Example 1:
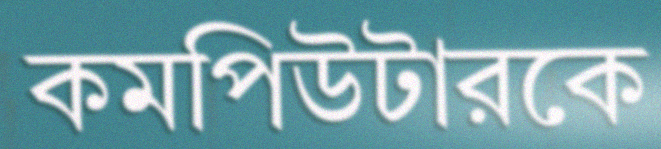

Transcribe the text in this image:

কমপিউটারকে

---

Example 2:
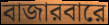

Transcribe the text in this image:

বাজারবারে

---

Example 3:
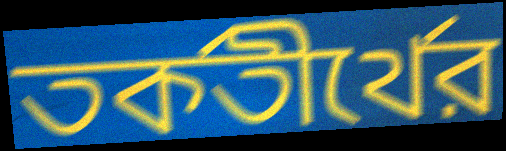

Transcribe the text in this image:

তর্কতীর্থের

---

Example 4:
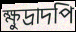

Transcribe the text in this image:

ক্ষুদ্রাদপি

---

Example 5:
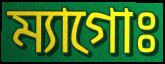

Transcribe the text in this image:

ম্যাগোঃ